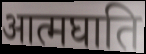
आत्मघाति